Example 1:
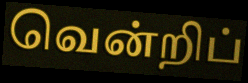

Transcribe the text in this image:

வென்றிப்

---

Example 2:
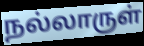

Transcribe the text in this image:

நல்லாருள்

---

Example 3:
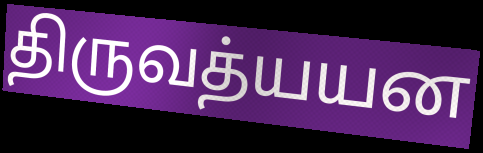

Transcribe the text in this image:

திருவத்யயன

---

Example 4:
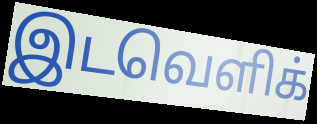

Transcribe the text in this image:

இடவெளிக்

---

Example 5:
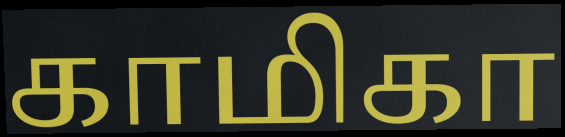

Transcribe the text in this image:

காமிகா